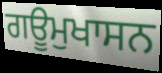
ਗਊਮੁਖਾਸਨ